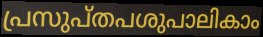
പ്രസുപ്തപശുപാലികാം